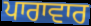
ਪਾਰਾਵਾਰ